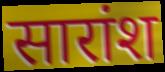
सारांश